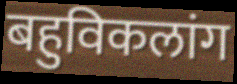
बहुविकलांग